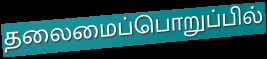
தலைமைப்பொறுப்பில்